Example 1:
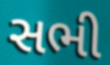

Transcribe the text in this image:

સભી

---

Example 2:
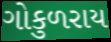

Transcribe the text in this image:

ગોકુળરાય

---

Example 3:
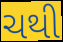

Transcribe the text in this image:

ચથી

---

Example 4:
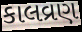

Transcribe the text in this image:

કાલવ્રણ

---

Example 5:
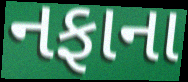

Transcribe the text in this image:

નફાના